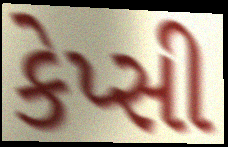
કેપ્સી